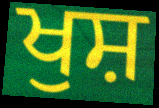
ਖੁਸ਼